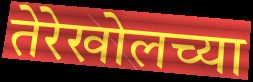
तेरेखोलच्या